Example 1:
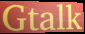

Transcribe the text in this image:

Gtalk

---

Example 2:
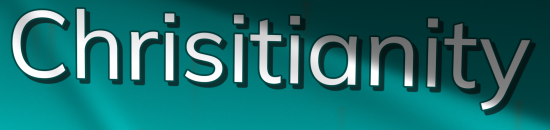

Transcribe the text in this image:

Chrisitianity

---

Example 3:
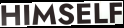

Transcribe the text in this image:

HIMSELF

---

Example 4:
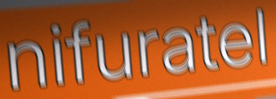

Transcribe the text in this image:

nifuratel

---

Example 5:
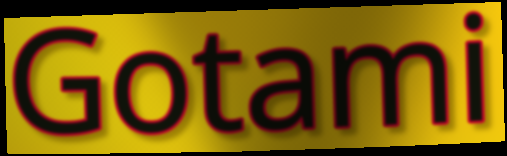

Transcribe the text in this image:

Gotami